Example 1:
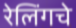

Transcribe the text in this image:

रेलिंगचे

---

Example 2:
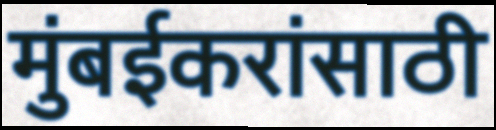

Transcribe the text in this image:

मुंबईकरांसाठी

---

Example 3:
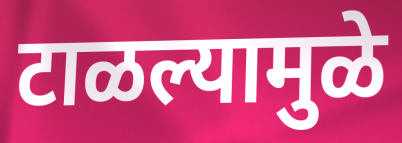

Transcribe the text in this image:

टाळल्यामुळे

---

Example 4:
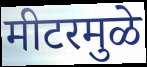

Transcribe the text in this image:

मीटरमुळे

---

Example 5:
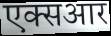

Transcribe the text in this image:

एक्सआर